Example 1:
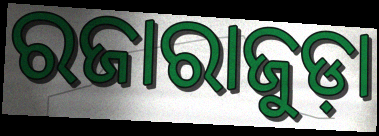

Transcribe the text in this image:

ରଜାରାଜୁଡ଼ା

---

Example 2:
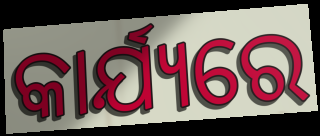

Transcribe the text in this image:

କାର୍ଯ୍ଯରେ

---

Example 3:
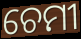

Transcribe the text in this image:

ଚେମୀ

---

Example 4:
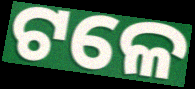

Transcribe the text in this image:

ଟଳେ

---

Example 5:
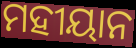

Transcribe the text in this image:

ମହୀୟାନ